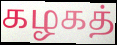
கழகத்